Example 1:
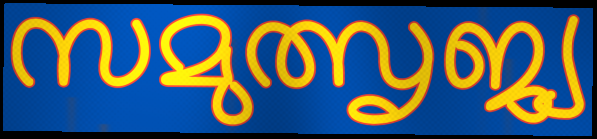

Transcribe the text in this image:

സമുത്സൃജ്യ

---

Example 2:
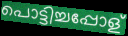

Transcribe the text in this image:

പൊട്ടിച്ചപ്പോള്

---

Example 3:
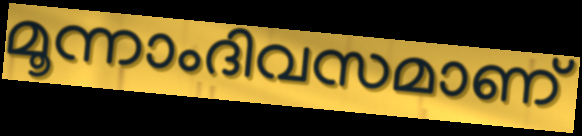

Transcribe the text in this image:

മൂന്നാംദിവസമാണ്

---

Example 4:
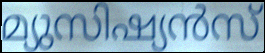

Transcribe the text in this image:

മ്യുസിഷ്യൻസ്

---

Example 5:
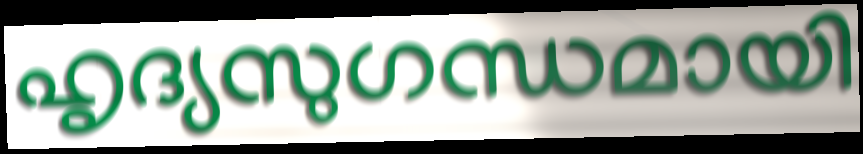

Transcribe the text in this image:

ഹൃദ്യസുഗന്ധമായി